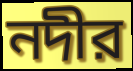
নদীর